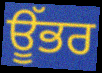
ਊੱਭਰ